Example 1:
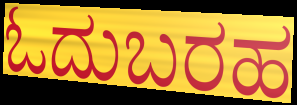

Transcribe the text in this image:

ಓದುಬರಹ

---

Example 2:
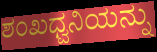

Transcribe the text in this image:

ಶಂಖಧ್ವನಿಯನ್ನು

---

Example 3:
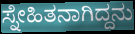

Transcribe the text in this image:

ಸ್ನೇಹಿತನಾಗಿದ್ದನು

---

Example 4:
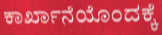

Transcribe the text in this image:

ಕಾರ್ಖಾನೆಯೊಂದಕ್ಕೆ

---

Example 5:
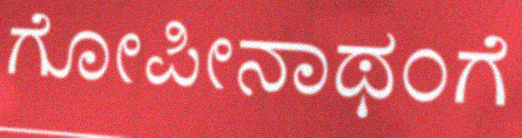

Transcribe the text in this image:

ಗೋಪೀನಾಥಂಗೆ